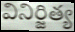
వినిర్జిత్య